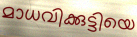
മാധവിക്കുട്ടിയെ